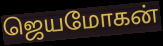
ஜெயமோகன்